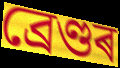
ব্ৰেণ্ডৰ